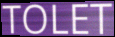
TOLET